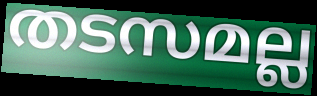
തടസമല്ല